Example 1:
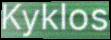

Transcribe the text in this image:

Kyklos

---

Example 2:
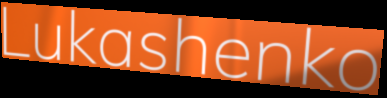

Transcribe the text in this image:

Lukashenko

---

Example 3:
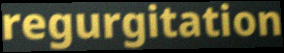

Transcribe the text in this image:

regurgitation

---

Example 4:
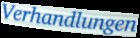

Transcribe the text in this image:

Verhandlungen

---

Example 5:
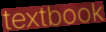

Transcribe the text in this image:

textbook